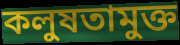
কলুষতামুক্ত